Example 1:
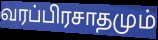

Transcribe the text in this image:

வரப்பிரசாதமும்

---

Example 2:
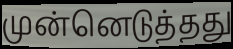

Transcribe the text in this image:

முன்னெடுத்தது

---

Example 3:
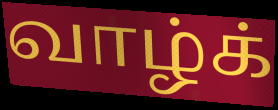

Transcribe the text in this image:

வாழ்க்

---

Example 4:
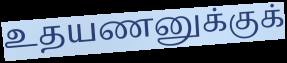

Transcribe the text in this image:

உதயணனுக்குக்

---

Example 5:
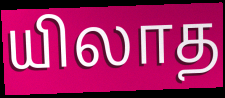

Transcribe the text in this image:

யிலாத